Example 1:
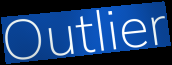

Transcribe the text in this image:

Outlier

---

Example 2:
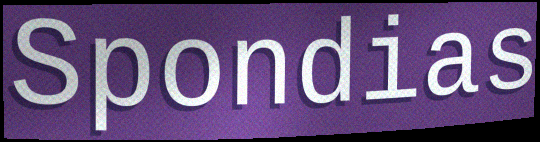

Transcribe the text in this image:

Spondias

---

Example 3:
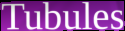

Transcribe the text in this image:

Tubules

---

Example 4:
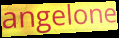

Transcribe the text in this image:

angelone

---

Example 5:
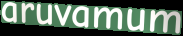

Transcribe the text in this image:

aruvamum